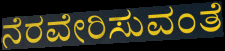
ನೆರವೇರಿಸುವಂತೆ